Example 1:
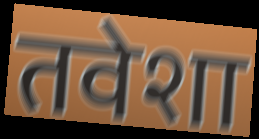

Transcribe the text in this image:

तवेशा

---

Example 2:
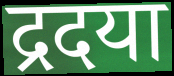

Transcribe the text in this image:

द्रदया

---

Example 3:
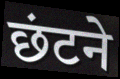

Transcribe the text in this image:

छंटने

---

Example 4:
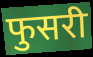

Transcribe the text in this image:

फुसरी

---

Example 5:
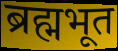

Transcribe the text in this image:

ब्रह्मभूत